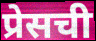
प्रेसची